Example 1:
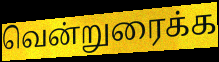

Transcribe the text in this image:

வென்றுரைக்க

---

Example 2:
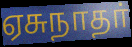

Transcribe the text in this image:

ஏசுநாதர்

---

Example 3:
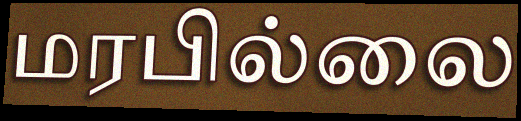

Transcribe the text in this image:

மரபில்லை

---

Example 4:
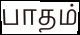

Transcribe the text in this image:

பாதம்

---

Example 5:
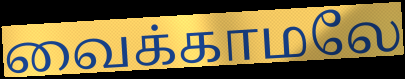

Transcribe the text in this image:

வைக்காமலே